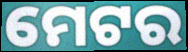
ମେଟର